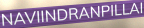
NAVIINDRANPILLAI